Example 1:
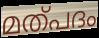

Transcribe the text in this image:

മത്പദം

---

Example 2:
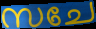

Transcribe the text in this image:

സചേ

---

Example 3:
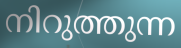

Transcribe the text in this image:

നിറുത്തുന്ന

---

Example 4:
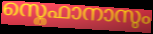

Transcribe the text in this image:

സ്തെഫാനാസും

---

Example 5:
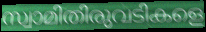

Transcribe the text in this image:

സ്വാമിതിരുവടികളെ